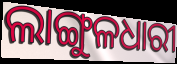
ଲାଙ୍ଗୁଳଧାରୀ